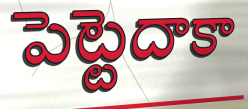
పెట్టెదాకా